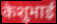
केशुभाई